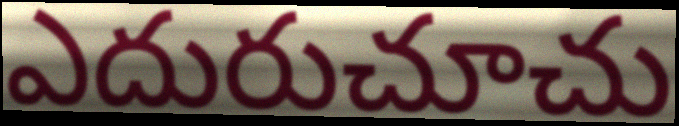
ఎదురుచూచు